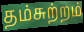
தம்சுற்றம்